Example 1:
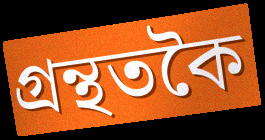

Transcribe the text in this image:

গ্ৰন্থতকৈ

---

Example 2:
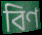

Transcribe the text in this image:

বিণ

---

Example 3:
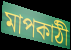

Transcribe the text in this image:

মাপকাঠী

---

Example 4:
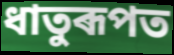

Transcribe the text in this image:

ধাতুৰূপত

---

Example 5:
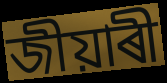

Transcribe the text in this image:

জীয়াৰী